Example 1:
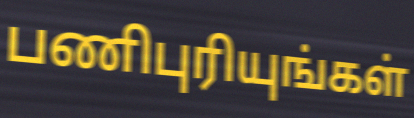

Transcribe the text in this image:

பணிபுரியுங்கள்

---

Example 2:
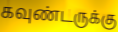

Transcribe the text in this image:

கவுண்டருக்கு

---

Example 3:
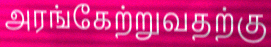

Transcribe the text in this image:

அரங்கேற்றுவதற்கு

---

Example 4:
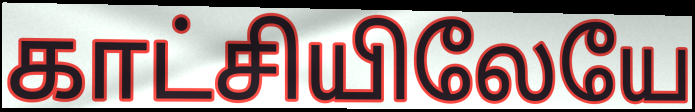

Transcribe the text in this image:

காட்சியிலேயே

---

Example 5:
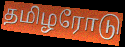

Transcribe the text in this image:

தமிழரோடு